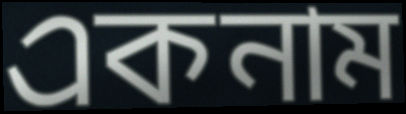
একনাম